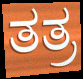
ತತ್ರ